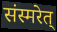
संस्मरेत्